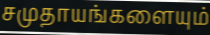
சமுதாயங்களையும்